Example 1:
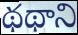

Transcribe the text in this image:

థథాని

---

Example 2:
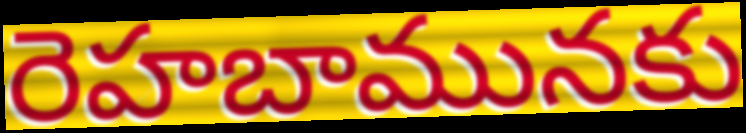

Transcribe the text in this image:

రెహబామునకు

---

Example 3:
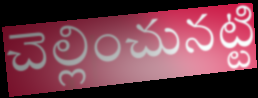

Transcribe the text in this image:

చెల్లించునట్టి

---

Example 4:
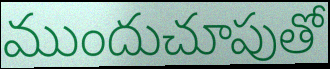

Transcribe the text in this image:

ముందుచూపుతో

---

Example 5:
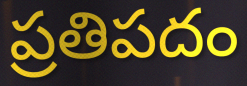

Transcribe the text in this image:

ప్రతిపదం